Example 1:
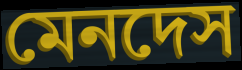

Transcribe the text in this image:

মেনদেস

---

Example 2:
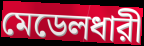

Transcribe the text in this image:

মেডেলধারী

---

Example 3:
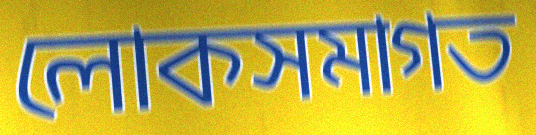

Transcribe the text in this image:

লোকসমাগত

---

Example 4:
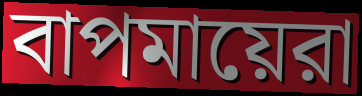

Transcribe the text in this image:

বাপমায়েরা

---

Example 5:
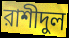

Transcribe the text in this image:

রাশীদুল